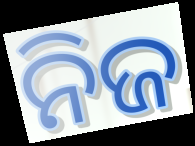
ନିଜ